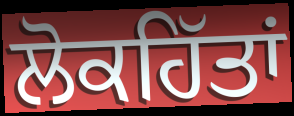
ਲੋਕਹਿੱਤਾਂ